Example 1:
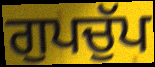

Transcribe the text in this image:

ਗੁਪਚੁੱਪ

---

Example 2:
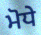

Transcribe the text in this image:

ਮੋਧੇ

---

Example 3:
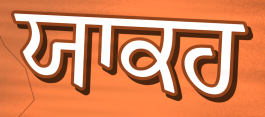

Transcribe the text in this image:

ਯਾਕਹ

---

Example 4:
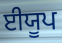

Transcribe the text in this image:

ਈਯੂਪ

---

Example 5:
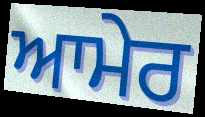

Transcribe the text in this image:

ਆਮੇਰ